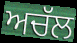
ਅਚੱਲ